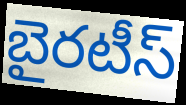
బైరటీస్